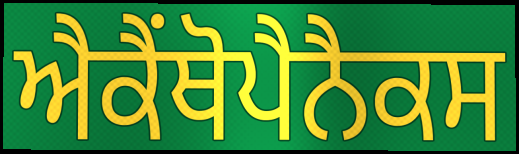
ਐਕੈਂਥੋਪੈਨੈਕਸ